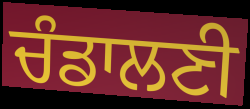
ਚੰਡਾਲਣੀ